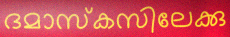
ദമാസ്കസിലേക്കു